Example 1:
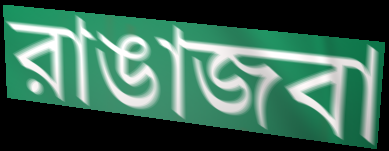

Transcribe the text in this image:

রাঙাজবা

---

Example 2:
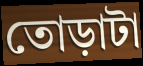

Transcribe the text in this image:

তোড়াটা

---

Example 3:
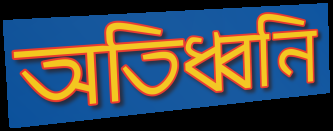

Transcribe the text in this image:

অতিধ্বনি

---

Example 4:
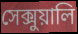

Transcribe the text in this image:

সেক্সুয়ালি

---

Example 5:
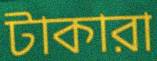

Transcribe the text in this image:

টাকারা